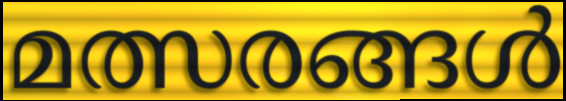
മത്സരങ്ങൾ